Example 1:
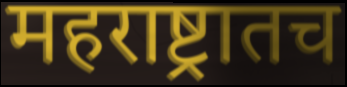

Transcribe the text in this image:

महराष्ट्रातच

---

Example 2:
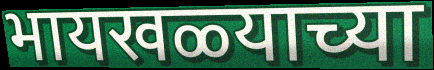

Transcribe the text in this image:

भायखळ्याच्या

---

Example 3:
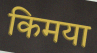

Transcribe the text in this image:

किमया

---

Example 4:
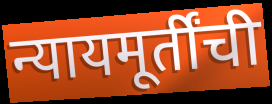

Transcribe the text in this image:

न्यायमूर्तींची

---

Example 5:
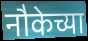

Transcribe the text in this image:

नौकेच्या